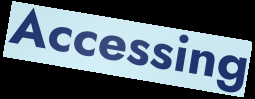
Accessing